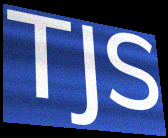
TJS